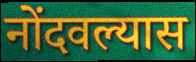
नोंदवल्यास